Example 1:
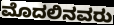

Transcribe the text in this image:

ಮೊದಲಿನವರು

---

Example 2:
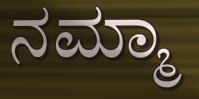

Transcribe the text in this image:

ನಮ್ಮಾ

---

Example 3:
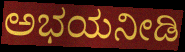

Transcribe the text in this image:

ಅಭಯನೀಡಿ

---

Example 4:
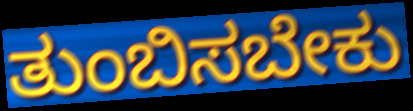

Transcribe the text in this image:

ತುಂಬಿಸಬೇಕು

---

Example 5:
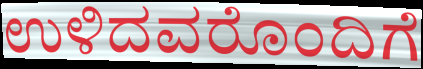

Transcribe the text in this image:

ಉಳಿದವರೊಂದಿಗೆ